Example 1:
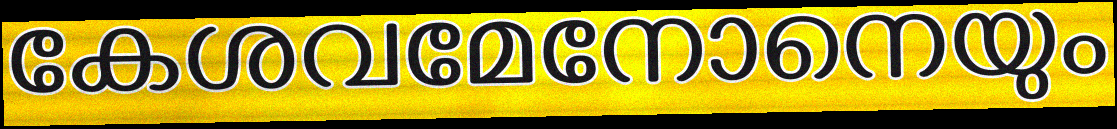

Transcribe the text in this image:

കേശവമേനോനെയും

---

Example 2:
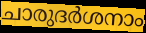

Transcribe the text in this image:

ചാരുദർശനാം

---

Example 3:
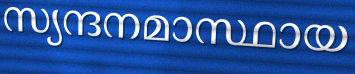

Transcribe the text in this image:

സ്യന്ദനമാസ്ഥായ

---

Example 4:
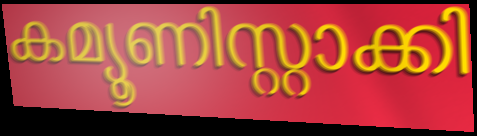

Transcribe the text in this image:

കമ്യൂണിസ്റ്റാക്കി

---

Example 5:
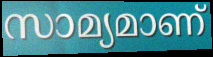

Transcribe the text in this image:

സാമ്യമാണ്